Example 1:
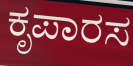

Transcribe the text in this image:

ಕೃಪಾರಸ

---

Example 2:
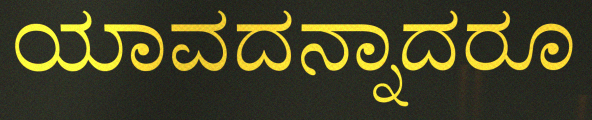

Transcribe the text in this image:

ಯಾವದನ್ನಾದರೂ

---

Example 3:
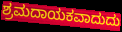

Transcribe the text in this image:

ಶ್ರಮದಾಯಕವಾದುದು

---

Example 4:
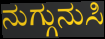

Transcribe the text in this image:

ನುಗ್ಗುನುಸಿ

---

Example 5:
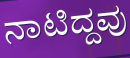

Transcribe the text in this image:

ನಾಟಿದ್ದವು